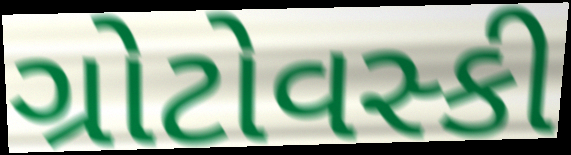
ગ્રોટોવસ્કી